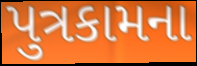
પુત્રકામના